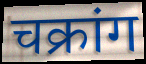
चक्रांग